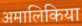
अमालिकिया